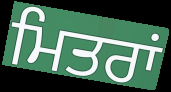
ਮਿਤਰਾਂ